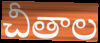
చీతాల